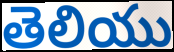
తెలియు